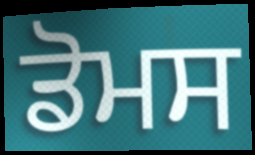
ਡੋਮਸ